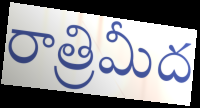
రాత్రిమీద